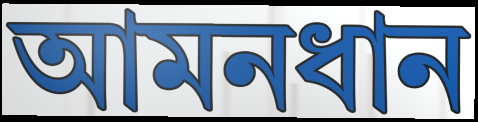
আমনধান